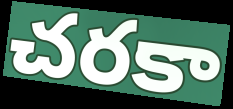
చరకా